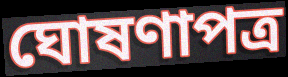
ঘোষণাপত্র